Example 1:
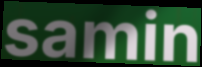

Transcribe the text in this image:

samin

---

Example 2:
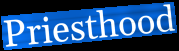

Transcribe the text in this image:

Priesthood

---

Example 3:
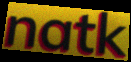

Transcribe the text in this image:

natk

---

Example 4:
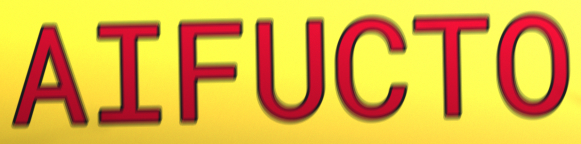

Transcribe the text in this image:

AIFUCTO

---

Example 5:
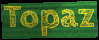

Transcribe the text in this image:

Topaz